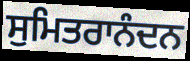
ਸੁਮਿਤਰਾਨੰਦਨ